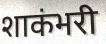
शाकंभरी